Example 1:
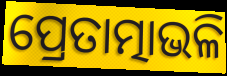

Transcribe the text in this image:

ପ୍ରେତାତ୍ମାଭଳି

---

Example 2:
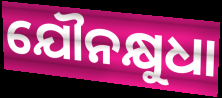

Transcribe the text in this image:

ଯୌନକ୍ଷୁଧା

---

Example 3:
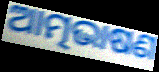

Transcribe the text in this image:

ଆତ୍ମଭାଷଣ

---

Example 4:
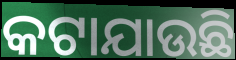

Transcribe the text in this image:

କଟାଯାଉଛି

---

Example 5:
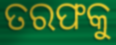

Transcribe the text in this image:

ତରଫକୁ